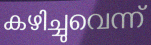
കഴിച്ചുവെന്ന്